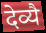
देव्यै